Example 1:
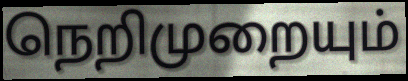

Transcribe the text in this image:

நெறிமுறையும்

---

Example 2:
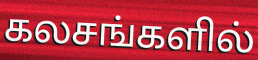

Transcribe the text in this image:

கலசங்களில்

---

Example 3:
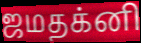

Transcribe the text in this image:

ஜமதக்னி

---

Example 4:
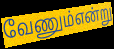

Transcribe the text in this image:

வேணும்என்று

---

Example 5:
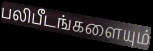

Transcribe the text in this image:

பலிபீடங்களையும்